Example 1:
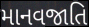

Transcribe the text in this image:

માનવજાતિ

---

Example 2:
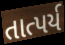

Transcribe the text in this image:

તાત્પર્ય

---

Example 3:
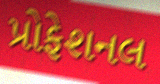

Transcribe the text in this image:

પ્રોફેશનલ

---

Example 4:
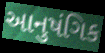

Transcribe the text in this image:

આનુષંગિક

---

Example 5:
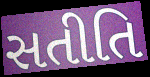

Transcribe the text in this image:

સતીતિ